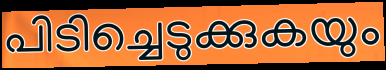
പിടിച്ചെടുക്കുകയും